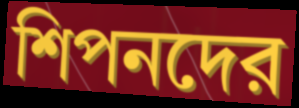
শিপনদের